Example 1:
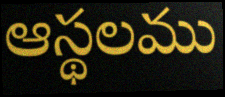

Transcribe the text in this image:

ఆస్థలము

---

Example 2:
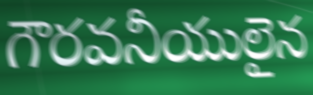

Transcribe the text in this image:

గౌరవనీయులైన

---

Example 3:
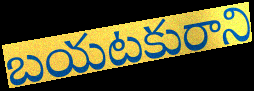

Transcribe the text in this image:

బయటకురాని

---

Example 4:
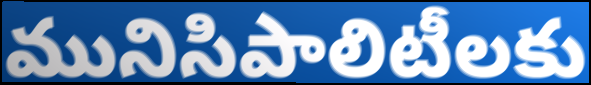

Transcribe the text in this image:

మునిసిపాలిటీలకు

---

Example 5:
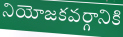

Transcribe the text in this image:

నియోజకవర్గానికి